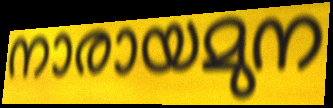
നാരായമുന